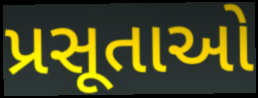
પ્રસૂતાઓ